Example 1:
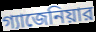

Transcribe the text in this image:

গ্যাজেনিয়ার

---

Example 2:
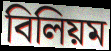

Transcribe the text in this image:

বিলিয়ম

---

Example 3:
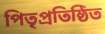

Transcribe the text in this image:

পিতৃপ্রতিষ্ঠিত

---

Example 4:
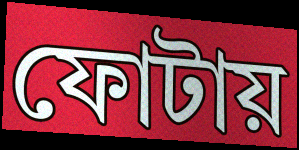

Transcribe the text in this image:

ফোটায়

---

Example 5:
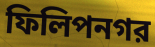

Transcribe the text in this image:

ফিলিপনগর